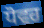
ਧੋਵਹ